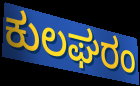
ಕುಲಘರಂ